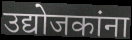
उद्योजकांना